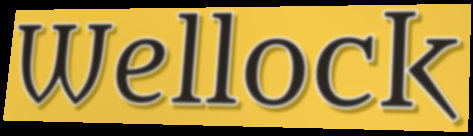
Wellock